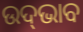
ଉଦ୍‍ଭାବ